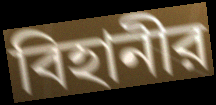
বিহানীর